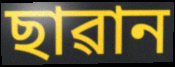
ছাৱান